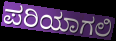
ಪರಿಯಾಗಲಿ